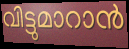
വിട്ടുമാറാൻ